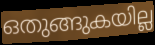
ഒതുങ്ങുകയില്ല